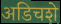
अडिचशे